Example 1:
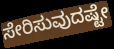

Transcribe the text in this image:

ಸೇರಿಸುವುದಷ್ಟೇ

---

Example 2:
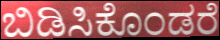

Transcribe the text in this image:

ಬಿಡಿಸಿಕೊಂಡರೆ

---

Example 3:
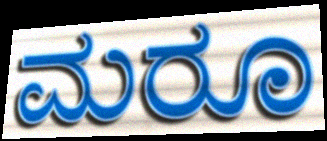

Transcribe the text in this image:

ಮರೂ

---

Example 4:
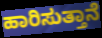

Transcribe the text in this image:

ಹಾರಿಸುತ್ತಾನೆ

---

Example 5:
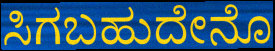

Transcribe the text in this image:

ಸಿಗಬಹುದೇನೊ